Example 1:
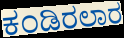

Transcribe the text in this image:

ಕಂಡಿರಲಾರ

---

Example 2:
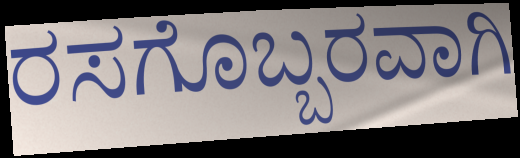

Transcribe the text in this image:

ರಸಗೊಬ್ಬರವಾಗಿ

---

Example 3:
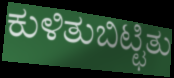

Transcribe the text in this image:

ಕುಳಿತುಬಿಟ್ಟಿತು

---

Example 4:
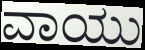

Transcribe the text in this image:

ವಾಯು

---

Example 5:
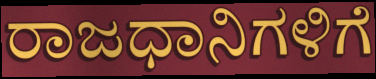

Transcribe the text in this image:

ರಾಜಧಾನಿಗಳಿಗೆ